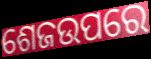
ଶେଜଉପରେ